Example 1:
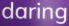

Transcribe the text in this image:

daring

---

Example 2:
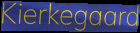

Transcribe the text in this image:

Kierkegaard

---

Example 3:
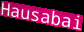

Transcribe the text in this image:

Hausabai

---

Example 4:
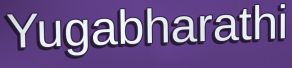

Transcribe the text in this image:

Yugabharathi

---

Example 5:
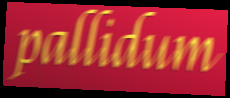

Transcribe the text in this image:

pallidum